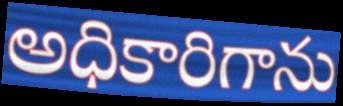
అధికారిగాను